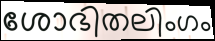
ശോഭിതലിംഗം